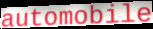
automobile